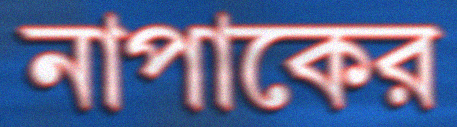
নাপাকের